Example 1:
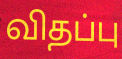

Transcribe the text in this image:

விதப்பு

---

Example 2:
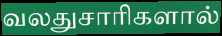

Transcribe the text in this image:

வலதுசாரிகளால்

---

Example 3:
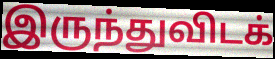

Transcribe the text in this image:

இருந்துவிடக்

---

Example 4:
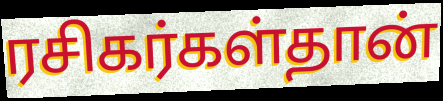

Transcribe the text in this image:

ரசிகர்கள்தான்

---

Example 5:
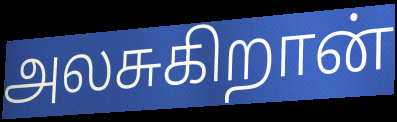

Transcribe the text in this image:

அலசுகிறான்